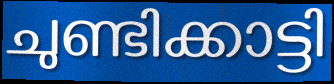
ചുണ്ടിക്കാട്ടി